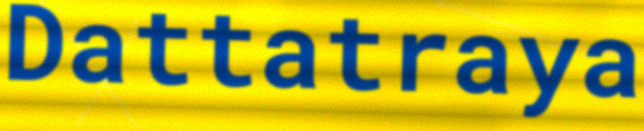
Dattatraya